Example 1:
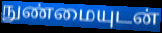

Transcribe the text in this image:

நுண்மையுடன்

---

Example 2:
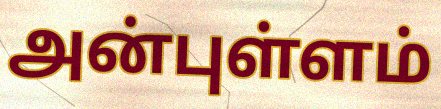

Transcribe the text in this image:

அன்புள்ளம்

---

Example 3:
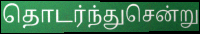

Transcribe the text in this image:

தொடர்ந்துசென்று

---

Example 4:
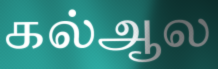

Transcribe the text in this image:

கல்ஆல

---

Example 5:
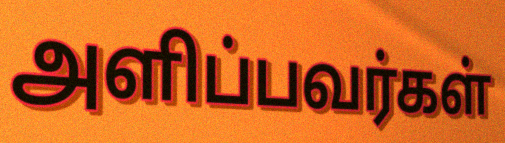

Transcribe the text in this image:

அளிப்பவர்கள்